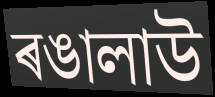
ৰঙালাউ